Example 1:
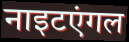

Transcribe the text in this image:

नाइटएंगल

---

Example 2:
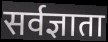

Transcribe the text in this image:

सर्वज्ञाता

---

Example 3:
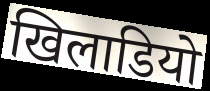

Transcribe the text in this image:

खिलाडियो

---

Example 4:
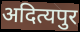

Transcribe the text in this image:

अदित्यपुर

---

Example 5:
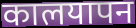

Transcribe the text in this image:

कालयापन